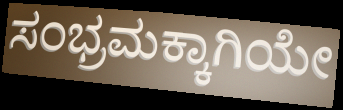
ಸಂಭ್ರಮಕ್ಕಾಗಿಯೇ